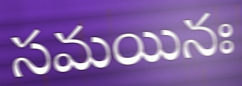
సమయినః